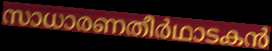
സാധാരണതീർഥാടകൻ